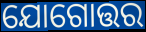
ଯୋଗୋତ୍ତର